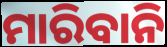
ମାରିବାନି